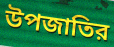
উপজাতির